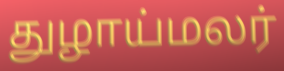
துழாய்மலர்